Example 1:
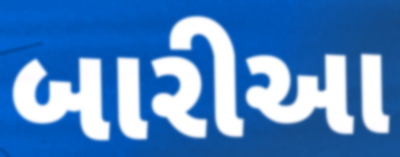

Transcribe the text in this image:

બારીઆ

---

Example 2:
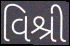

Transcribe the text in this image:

વિશ્રી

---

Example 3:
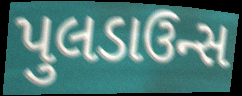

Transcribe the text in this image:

પુલડાઉન્સ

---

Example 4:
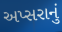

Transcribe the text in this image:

અપ્સરાનું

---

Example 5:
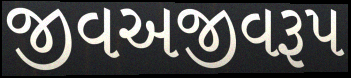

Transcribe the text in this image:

જીવઅજીવરૂપ